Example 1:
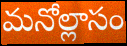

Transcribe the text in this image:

మనోల్లాసం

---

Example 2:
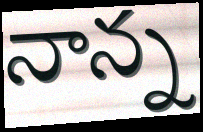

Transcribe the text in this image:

నాన్న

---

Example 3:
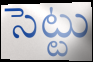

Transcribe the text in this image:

సెట్టు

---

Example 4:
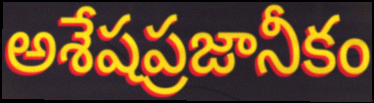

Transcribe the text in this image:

అశేషప్రజానీకం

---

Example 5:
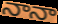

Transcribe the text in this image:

నానా